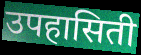
उपहासिती